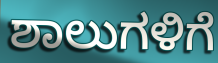
ಶಾಲುಗಳಿಗೆ